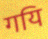
गयि